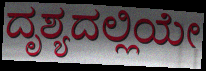
ದೃಶ್ಯದಲ್ಲಿಯೇ